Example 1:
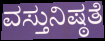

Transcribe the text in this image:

ವಸ್ತುನಿಷ್ಠತೆ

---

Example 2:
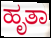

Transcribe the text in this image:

ಹೃತಾ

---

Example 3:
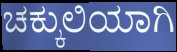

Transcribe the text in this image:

ಚಕ್ಕುಲಿಯಾಗಿ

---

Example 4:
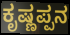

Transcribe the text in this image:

ಕೃಷ್ಣಪ್ಪನ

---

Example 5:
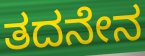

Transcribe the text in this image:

ತದನೇನ